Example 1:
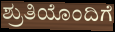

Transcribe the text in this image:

ಶ್ರುತಿಯೊಂದಿಗೆ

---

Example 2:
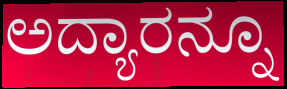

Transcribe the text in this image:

ಅದ್ಯಾರನ್ನೂ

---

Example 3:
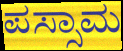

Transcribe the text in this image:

ಪಸ್ಸಾಮ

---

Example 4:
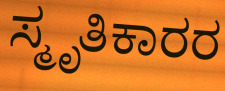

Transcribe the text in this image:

ಸ್ಮೃತಿಕಾರರ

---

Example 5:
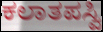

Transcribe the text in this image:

ಕಲಾತಪಸ್ವಿ